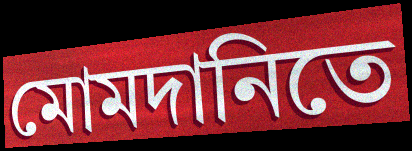
মোমদানিতে